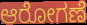
ಆರೋಗಣೆ